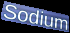
Sodium